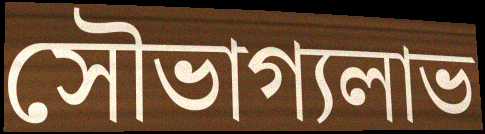
সৌভাগ্যলাভ